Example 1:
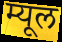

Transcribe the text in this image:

म्यूल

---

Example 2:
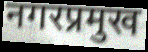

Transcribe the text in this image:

नगरप्रमुख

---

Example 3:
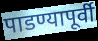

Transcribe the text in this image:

पाडण्यापूर्वी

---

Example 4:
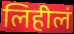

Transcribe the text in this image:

लिहीलं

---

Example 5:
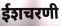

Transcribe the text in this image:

ईशचरणी